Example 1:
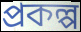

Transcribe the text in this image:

প্রকল্প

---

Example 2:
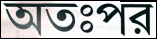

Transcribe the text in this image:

অতঃপর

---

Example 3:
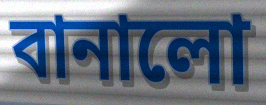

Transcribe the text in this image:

বানালো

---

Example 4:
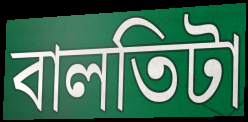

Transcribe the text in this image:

বালতিটা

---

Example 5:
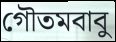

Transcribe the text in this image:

গৌতমবাবু